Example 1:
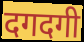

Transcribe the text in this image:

दगदगी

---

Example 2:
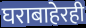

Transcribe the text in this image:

घराबाहेरही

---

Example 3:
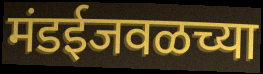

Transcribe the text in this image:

मंडईजवळच्या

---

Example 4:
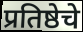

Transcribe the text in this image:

प्रतिष्ठेचे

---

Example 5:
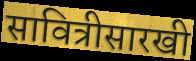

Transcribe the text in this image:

सावित्रीसारखी